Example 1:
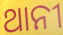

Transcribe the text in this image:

ଥାନୀ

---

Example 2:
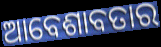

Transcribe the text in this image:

ଆବେଶାବତାର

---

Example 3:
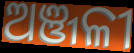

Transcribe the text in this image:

ଅଞ୍ଜଳୀ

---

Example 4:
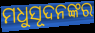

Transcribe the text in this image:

ମଧୁସୂଦନଙ୍କର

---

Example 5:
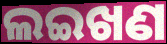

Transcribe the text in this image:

ଲଇଖଣ